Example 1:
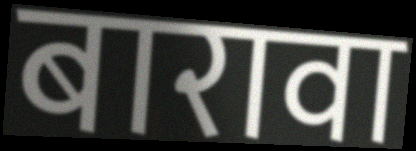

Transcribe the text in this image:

बारावा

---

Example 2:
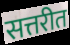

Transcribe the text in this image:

सत्तरीत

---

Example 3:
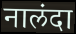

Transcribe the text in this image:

नालंदा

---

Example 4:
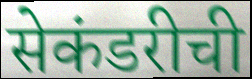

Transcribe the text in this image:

सेकंडरीची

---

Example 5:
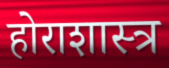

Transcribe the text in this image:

होराशास्त्र